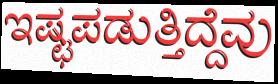
ಇಷ್ಟಪಡುತ್ತಿದ್ದೆವು